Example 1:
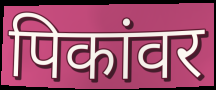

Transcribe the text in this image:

पिकांवर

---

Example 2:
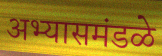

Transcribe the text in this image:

अभ्यासमंडळे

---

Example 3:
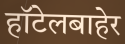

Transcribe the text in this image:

हॉटेलबाहेर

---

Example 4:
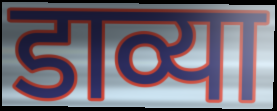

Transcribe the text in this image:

डाव्या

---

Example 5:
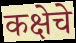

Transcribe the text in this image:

कक्षेचे